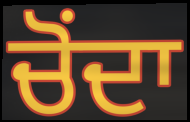
ਚੋਂਦਾ